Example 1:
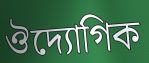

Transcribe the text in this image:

ঔদ্যোগিক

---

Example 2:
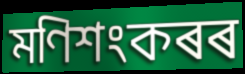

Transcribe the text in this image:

মণিশংকৰৰ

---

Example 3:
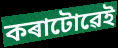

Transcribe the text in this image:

কৰাটোৱেই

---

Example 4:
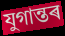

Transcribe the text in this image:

যুগান্তৰ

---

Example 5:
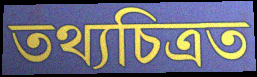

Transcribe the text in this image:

তথ্যচিত্ৰত